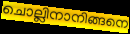
ചൊല്ലിനാനിങ്ങനെ